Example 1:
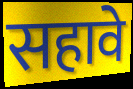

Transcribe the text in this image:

सहावे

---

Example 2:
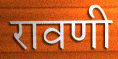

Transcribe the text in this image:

रावणी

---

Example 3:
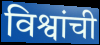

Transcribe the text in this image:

विश्वांची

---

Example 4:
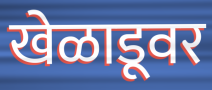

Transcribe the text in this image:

खेळाडूवर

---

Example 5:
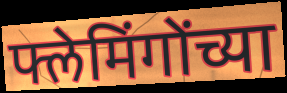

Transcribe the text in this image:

फ्लेमिंगोंच्या